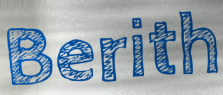
Berith